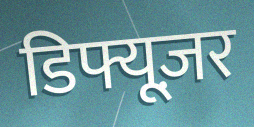
डिफ्यूज़र